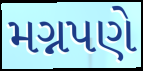
મગ્નપણે